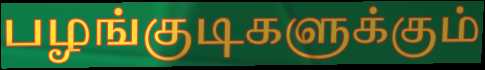
பழங்குடிகளுக்கும்